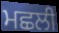
ਮਛਲੀ